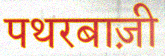
पथरबाज़ी